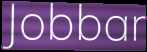
Jobbar